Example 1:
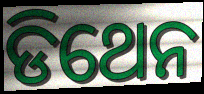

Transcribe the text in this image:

ଡିଥେନ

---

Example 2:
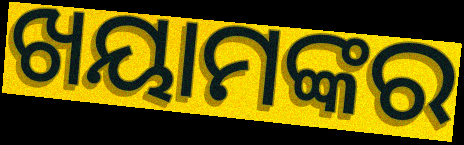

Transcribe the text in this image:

ଖୟାମଙ୍କର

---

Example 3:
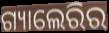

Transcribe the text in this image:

ଗ୍ୟାଲେରିର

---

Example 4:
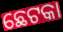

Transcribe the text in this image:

ଛେଟକା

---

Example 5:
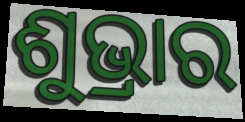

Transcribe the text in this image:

ଶୁଭ୍ରାର